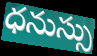
ధనుస్సు